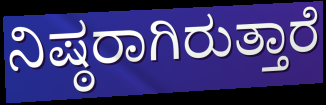
ನಿಷ್ಠರಾಗಿರುತ್ತಾರೆ